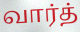
வார்த்